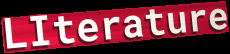
LIterature